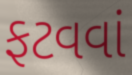
ફટવવાં